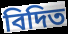
বিদিত